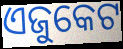
ଏଜୁକେଟ